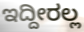
ಇದ್ದೀರಲ್ಲ